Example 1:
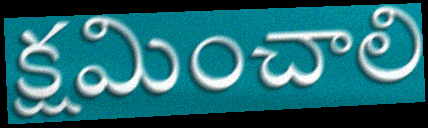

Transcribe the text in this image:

క్షమించాలి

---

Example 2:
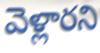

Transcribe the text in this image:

వెళ్లారని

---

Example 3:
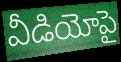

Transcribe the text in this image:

వీడియోపై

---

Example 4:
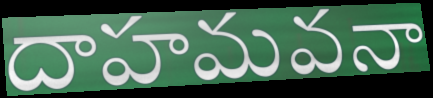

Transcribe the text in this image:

దాహమవనా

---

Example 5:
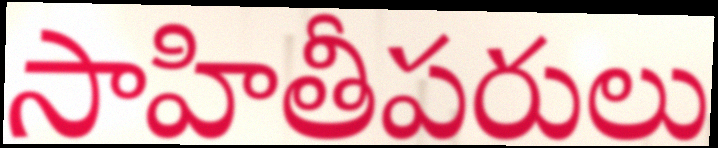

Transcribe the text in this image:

సాహితీపరులు